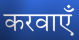
करवाएँ